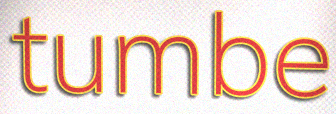
tumbe